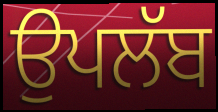
ਉਪਲੱਬ